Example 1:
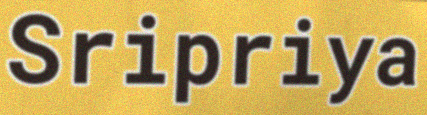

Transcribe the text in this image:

Sripriya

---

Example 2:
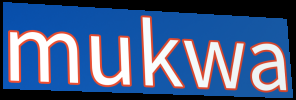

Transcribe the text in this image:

mukwa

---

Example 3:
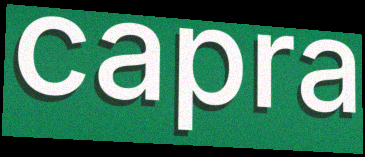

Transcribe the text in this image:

capra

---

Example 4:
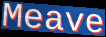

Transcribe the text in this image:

Meave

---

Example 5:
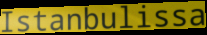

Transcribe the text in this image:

Istanbulissa